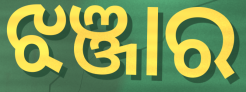
ଝଞ୍ଜାର